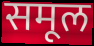
समूल